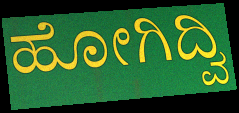
ಹೋಗಿದ್ವಿ